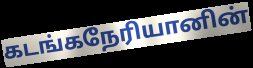
கடங்கநேரியானின்